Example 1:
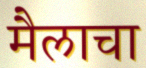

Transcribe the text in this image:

मैलाचा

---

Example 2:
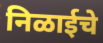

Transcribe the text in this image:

निळाईचे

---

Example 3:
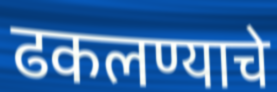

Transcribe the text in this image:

ढकलण्याचे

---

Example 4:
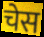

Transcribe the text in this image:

चेस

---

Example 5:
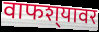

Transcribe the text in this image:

वाफश्यावर